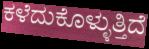
ಕಳೆದುಕೊಳ್ಳುತ್ತಿದೆ